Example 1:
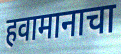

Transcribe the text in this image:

हवामानाचा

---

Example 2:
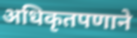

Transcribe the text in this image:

अधिकृतपणाने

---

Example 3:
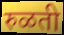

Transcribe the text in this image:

रुळती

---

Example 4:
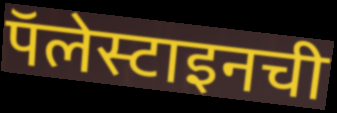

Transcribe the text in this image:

पॅलेस्टाइनची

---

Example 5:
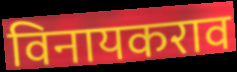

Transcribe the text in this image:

विनायकराव